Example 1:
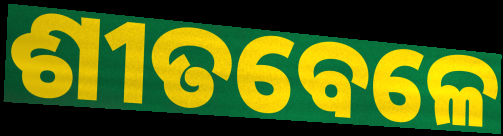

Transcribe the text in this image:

ଶୀତବେଳେ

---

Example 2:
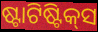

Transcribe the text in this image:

ଷ୍ଟାଟିଷ୍ଟିକ୍‍ସ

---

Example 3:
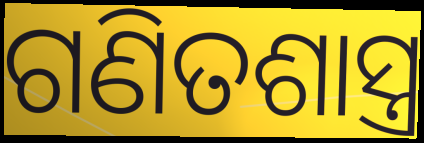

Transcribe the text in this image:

ଗଣିତଶାସ୍ତ୍ର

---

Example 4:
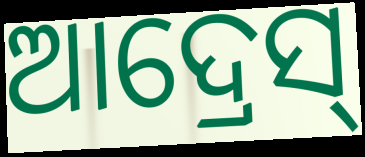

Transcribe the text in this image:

ଆଦ୍ରେସ୍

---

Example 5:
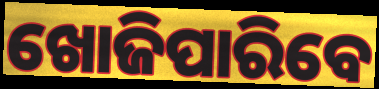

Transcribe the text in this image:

ଖୋଜିପାରିବେ